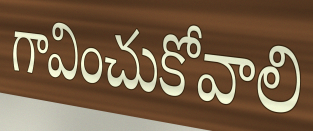
గావించుకోవాలి